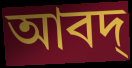
আবদ্